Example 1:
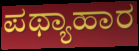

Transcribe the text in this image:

ಪಥ್ಯಾಹಾರ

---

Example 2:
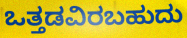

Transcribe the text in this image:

ಒತ್ತಡವಿರಬಹುದು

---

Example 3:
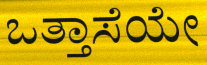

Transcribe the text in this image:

ಒತ್ತಾಸೆಯೇ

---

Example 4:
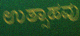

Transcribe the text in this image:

ಉತ್ಸಾಹವು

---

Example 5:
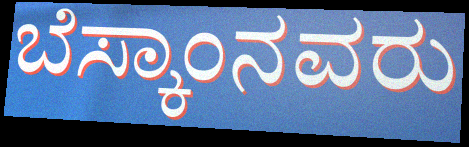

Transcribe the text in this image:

ಬೆಸ್ಕಾಂನವರು